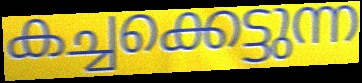
കച്ചക്കെട്ടുന്ന